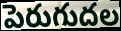
పెరుగుదల